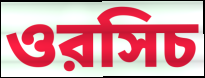
ওরসিচ